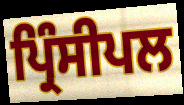
ਪ੍ਰਿੰਸੀਪਲ